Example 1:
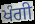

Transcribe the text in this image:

ਖੰਗੀ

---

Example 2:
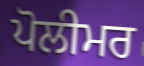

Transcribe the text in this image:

ਪੋਲੀਮਰ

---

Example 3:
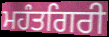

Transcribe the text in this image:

ਮਹੰਤਗਿਰੀ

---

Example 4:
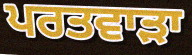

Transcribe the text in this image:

ਪਰਤਵਾੜਾ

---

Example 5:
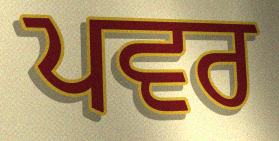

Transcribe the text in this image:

ਪਵਰ